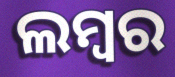
ଲମ୍ୱର